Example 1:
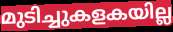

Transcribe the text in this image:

മുടിച്ചുകളകയില്ല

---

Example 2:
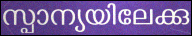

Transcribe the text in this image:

സ്പാന്യയിലേക്കു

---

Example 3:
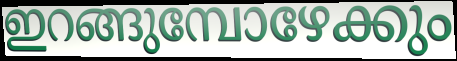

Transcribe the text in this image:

ഇറങ്ങുമ്പോഴേക്കും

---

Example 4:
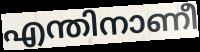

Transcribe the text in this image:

എന്തിനാണീ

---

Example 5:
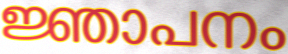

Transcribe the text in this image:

ജ്ഞാപനം